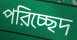
পরিচ্ছেদ